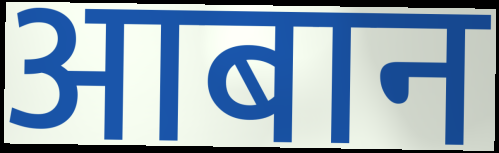
आबान